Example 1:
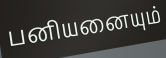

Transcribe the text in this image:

பனியனையும்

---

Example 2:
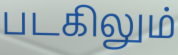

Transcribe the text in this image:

படகிலும்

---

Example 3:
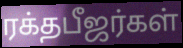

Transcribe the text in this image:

ரக்தபீஜர்கள்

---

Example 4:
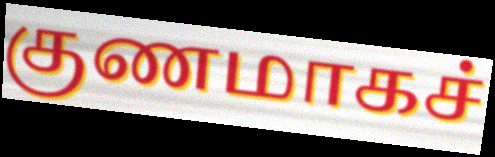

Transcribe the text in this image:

குணமாகச்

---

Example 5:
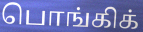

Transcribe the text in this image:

பொங்கிக்